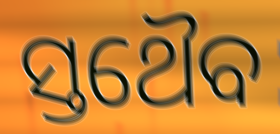
ସ୍ତଥୈବ